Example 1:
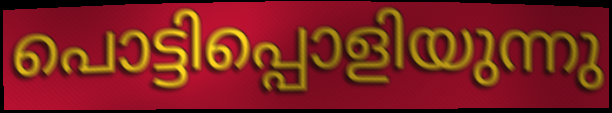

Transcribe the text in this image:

പൊട്ടിപ്പൊളിയുന്നു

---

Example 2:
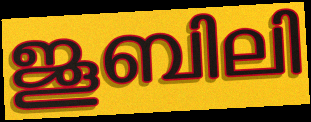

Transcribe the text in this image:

ജൂബിലി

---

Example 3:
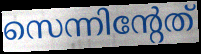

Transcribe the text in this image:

സെന്നിന്റേത്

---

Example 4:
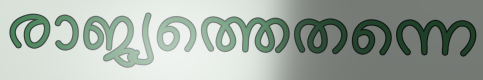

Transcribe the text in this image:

രാജ്യത്തെതന്നെ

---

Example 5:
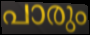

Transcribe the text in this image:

പാരും